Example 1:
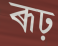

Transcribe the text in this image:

ৰূঢ়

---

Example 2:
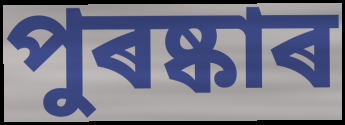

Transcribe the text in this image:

পুৰষ্কাৰ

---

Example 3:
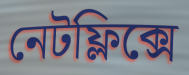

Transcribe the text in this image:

নেটফ্লিক্সে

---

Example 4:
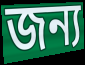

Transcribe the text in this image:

জন্য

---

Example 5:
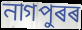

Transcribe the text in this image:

নাগপুৰৰ